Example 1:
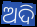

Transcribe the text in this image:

ଅଦି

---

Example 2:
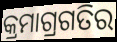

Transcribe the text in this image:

କ୍ରମାଗ୍ରଗତିର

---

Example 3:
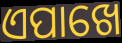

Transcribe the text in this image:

ଏପାଖେ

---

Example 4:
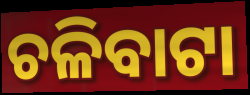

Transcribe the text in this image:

ଚଳିବାଟା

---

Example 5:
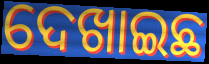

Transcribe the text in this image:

ଦେଖାଇଛ